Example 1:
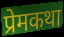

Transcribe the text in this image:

प्रेमकथा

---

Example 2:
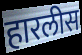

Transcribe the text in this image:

हारलीस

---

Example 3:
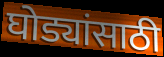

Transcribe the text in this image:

घोड्यांसाठी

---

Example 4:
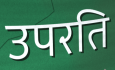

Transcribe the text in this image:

उपरति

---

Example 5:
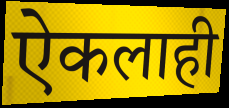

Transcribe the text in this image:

ऐकलाही